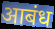
आबंध